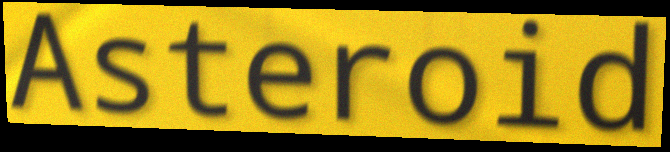
Asteroid